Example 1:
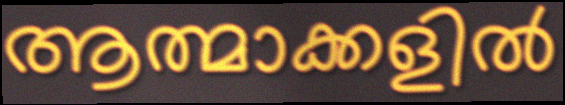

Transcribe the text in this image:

ആത്മാക്കളിൽ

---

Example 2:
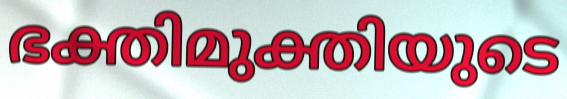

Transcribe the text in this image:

ഭക്തിമുക്തിയുടെ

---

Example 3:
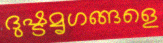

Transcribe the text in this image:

ദുഷ്ടമൃഗങ്ങളെ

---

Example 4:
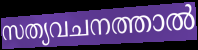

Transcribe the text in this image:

സത്യവചനത്താൽ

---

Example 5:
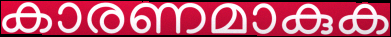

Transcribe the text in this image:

കാരണമാകുക